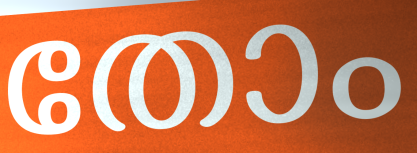
തോം